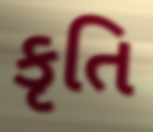
કૃતિ